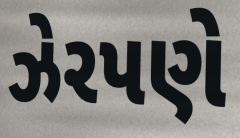
ઝેરપણે